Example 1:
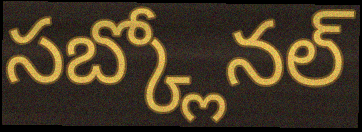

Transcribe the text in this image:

సబ్క్లోనల్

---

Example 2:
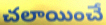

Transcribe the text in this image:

చలాయించే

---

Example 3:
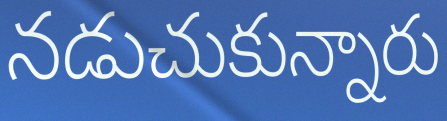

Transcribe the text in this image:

నడుచుకున్నారు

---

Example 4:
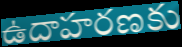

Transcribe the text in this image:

ఉదాహరణకు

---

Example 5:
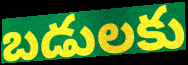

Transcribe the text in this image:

బడులకు